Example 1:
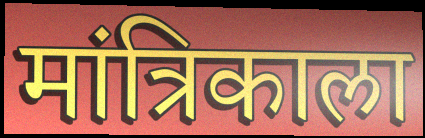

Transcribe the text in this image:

मांत्रिकाला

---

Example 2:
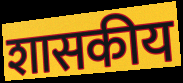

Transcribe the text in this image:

शासकीय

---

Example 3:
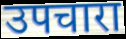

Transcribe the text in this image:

उपचारा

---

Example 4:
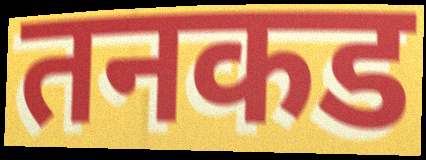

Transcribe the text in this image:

तनकड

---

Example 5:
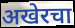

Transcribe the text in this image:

अखेरचा